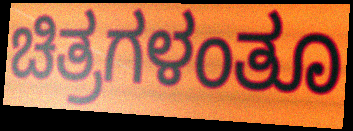
ಚಿತ್ರಗಳಂತೂ